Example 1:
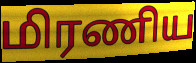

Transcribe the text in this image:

மிரணிய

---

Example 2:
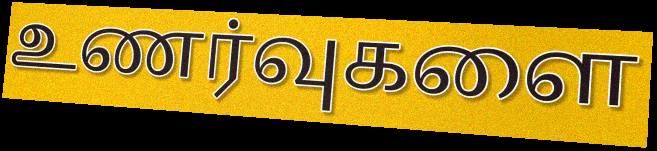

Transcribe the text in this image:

உணர்வுகளை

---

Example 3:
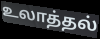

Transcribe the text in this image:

உலாத்தல்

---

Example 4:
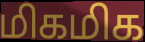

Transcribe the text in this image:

மிகமிக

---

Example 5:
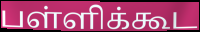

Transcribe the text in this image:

பள்ளிக்கூட